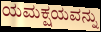
ಯಮಕ್ಷಯವನ್ನು